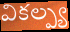
వికల్ప్య